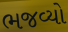
ભજવ્યો